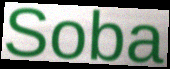
Soba